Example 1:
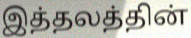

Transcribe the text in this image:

இத்தலத்தின்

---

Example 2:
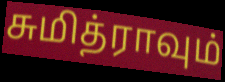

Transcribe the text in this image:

சுமித்ராவும்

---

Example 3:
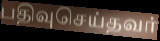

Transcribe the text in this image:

பதிவுசெய்தவர்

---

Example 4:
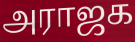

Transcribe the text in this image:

அராஜக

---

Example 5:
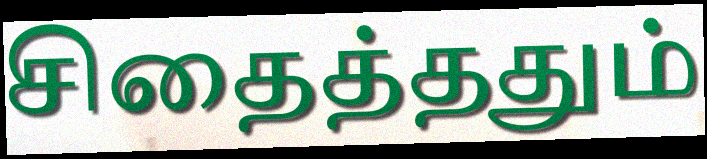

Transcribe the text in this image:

சிதைத்ததும்